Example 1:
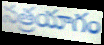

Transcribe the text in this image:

సత్రయాగం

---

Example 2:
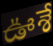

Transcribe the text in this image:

ఊశే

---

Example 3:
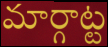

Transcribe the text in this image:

మార్గాట్ట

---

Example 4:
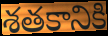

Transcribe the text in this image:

శతకానికి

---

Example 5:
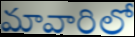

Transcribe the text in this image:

మావారిలో